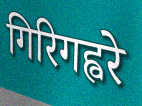
गिरिगह्वरे